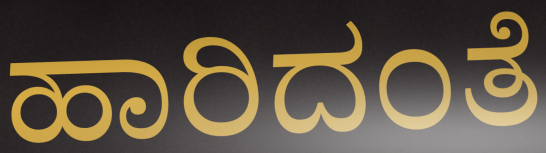
ಹಾರಿದಂತೆ